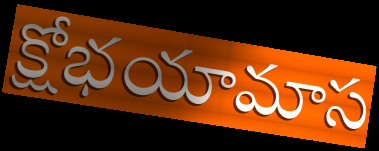
క్షోభయామాస